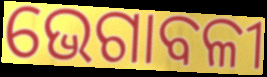
ଭେଗାବଳୀ